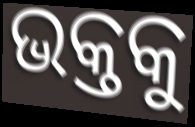
ଭକ୍ତକୁ